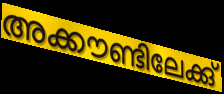
അക്കൗണ്ടിലേക്കു്